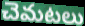
చెమటలు